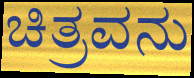
ಚಿತ್ರವನು